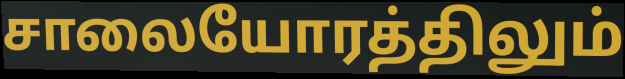
சாலையோரத்திலும்